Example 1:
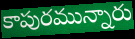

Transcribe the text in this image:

కాపురమున్నారు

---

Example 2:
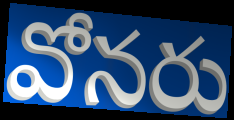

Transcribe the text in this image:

వోనరు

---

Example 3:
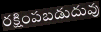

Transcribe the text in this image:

రక్షింపబడుదువు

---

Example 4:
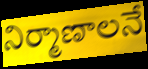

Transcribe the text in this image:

నిర్మాణాలనే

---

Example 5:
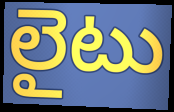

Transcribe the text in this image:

లైటు